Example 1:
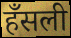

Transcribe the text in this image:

हँसली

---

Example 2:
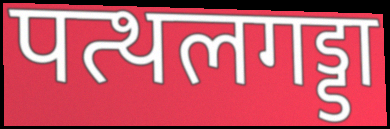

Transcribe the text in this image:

पत्थलगड्डा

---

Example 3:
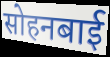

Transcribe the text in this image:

सोहनबाई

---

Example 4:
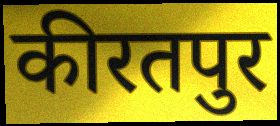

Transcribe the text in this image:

कीरतपुर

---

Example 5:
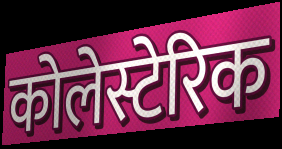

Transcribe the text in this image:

कोलेस्टेरिक